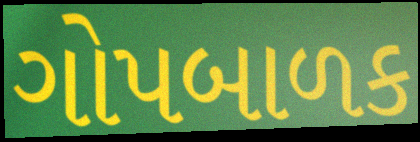
ગોપબાળક